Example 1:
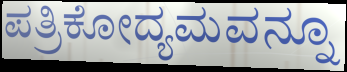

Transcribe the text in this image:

ಪತ್ರಿಕೋದ್ಯಮವನ್ನೂ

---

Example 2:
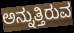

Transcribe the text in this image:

ಅನ್ನುತ್ತಿರುವ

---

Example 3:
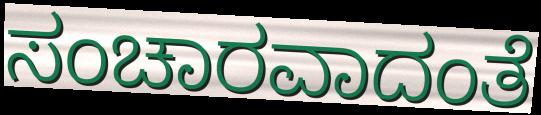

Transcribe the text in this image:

ಸಂಚಾರವಾದಂತೆ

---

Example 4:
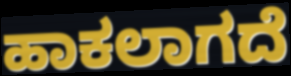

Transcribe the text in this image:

ಹಾಕಲಾಗದೆ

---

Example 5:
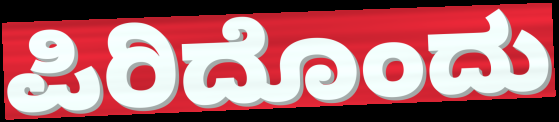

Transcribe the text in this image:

ಪಿರಿದೊಂದು